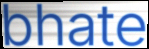
bhate